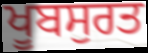
ਖੂਬਸੁਰਤ